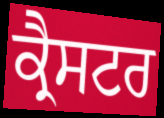
ਕ੍ਰੈਸਟਰ